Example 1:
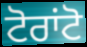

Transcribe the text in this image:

ਟੋਰਾਂਟੋ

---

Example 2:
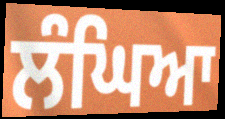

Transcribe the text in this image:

ਲੰਘਿਆ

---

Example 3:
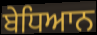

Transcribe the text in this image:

ਬੇਧਿਆਨ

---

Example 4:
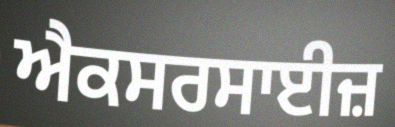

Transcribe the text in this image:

ਐਕਸਰਸਾਈਜ਼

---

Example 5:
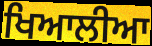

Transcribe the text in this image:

ਖਿਆਲੀਆ